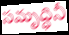
సమృద్ధినీ